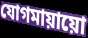
যোগমায়ায়ো